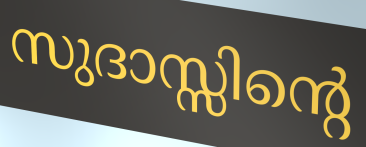
സുദാസ്സിന്റെ